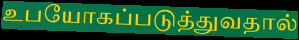
உபயோகப்படுத்துவதால்